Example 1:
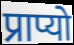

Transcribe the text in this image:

प्राप्यो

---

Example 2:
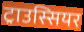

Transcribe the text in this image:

ट्राउस्सियर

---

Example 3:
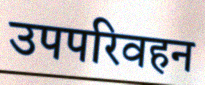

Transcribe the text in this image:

उपपरिवहन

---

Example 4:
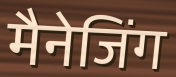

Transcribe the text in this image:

मैनेजिंग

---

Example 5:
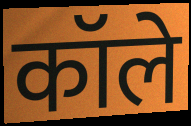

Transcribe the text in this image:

कॉले